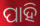
ପାହି